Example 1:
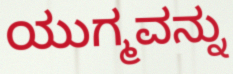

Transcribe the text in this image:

ಯುಗ್ಮವನ್ನು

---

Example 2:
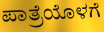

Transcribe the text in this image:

ಪಾತ್ರೆಯೊಳಗೆ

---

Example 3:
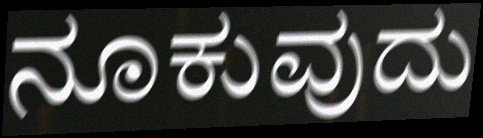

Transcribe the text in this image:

ನೂಕುವುದು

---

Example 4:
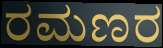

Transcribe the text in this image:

ರಮಣರ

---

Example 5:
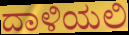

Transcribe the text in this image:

ದಾಳಿಯಲಿ